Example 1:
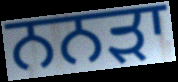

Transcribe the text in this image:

ਨਨੜਾ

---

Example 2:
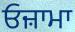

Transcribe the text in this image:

ਓਜ਼ਾਮਾ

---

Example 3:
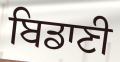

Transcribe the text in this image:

ਬਿਡਾਣੀ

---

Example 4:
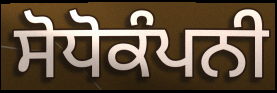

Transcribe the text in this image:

ਸੋਧੋਕੰਪਨੀ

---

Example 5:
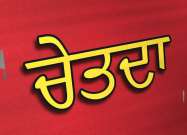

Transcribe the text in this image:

ਚੇਤਦਾ